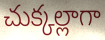
చుక్కల్లాగా